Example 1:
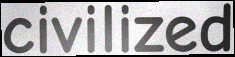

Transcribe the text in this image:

civilized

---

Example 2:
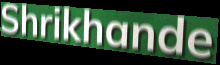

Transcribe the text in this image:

Shrikhande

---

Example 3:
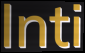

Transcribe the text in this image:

Inti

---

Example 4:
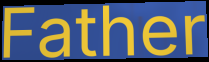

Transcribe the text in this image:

Father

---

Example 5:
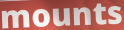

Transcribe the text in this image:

mounts